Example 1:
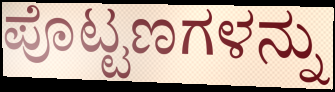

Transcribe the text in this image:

ಪೊಟ್ಟಣಗಳನ್ನು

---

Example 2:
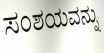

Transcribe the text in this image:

ಸಂಶಯವನ್ನು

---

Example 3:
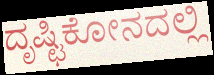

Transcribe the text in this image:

ದೃಷ್ಟಿಕೋನದಲ್ಲಿ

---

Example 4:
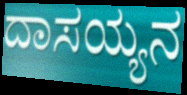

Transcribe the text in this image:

ದಾಸಯ್ಯನ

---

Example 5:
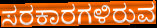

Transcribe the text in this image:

ಸರಕಾರಗಳಿರುವ